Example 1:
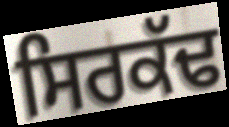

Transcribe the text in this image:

ਸਿਰਕੱਢ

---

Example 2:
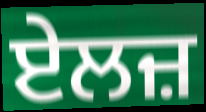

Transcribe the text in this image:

ਏਲਜ਼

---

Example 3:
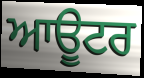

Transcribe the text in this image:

ਆਊਟਰ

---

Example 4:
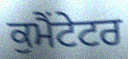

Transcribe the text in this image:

ਕੁਮੈਂਟੇਟਰ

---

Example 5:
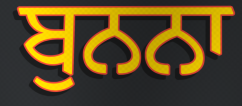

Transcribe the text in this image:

ਬੁਨਨਾ